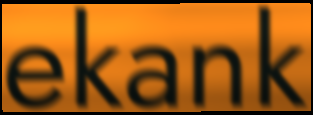
ekank